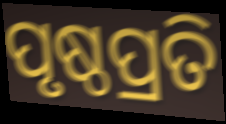
ପୃଷ୍ଠପ୍ରତି